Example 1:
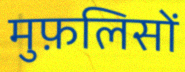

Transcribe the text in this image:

मुफ़लिसों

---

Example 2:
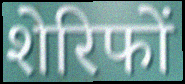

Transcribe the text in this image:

शेरिफों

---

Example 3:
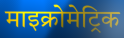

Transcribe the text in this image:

माइक्रोमेट्रिक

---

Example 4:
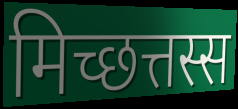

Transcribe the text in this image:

मिच्छत्तस्स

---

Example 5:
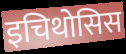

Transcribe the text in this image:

इचिथोसिस